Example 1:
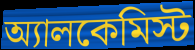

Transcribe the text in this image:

অ্যালকেমিস্ট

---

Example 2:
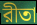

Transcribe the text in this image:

রীতা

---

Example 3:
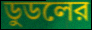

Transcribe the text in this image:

ডুডলের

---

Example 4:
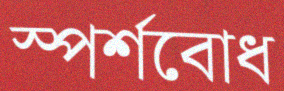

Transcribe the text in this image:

স্পর্শবোধ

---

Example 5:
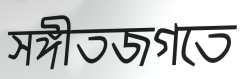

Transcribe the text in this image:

সঙ্গীতজগতে